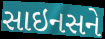
સાઇનસને